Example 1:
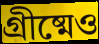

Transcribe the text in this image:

গ্রীষ্মেও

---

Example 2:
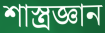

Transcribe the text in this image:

শাস্ত্রজ্ঞান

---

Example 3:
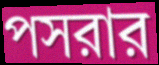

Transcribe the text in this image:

পসরার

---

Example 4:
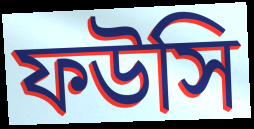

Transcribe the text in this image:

ফউসি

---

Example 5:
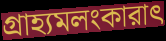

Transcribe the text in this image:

গ্রাহ্যমলংকারাৎ